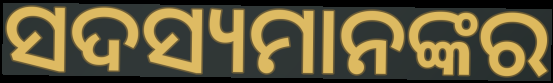
ସଦସ୍ୟମାନଙ୍କର